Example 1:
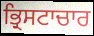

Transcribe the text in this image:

ਭ੍ਰਿਸਟਾਚਾਰ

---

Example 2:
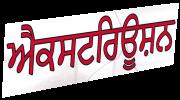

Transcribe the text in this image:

ਐਕਸਟਰਿਊਸ਼ਨ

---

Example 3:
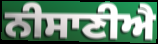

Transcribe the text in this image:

ਨੀਸਾਣੀਐ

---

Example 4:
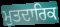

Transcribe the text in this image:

ਮੁਤਦਾਰਿਕ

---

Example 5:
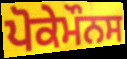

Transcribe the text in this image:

ਪੋਕੇਮੌਨਸ